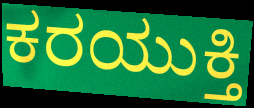
ಕರಯುಕ್ತಿ